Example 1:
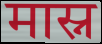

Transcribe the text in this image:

मास्न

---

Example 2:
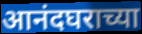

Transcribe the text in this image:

आनंदघराच्या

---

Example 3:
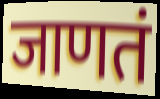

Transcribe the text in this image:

जाणतं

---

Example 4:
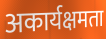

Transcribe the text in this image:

अकार्यक्षमता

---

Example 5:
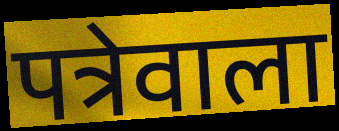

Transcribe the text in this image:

पत्रेवाला